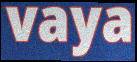
vaya